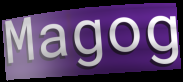
Magog